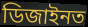
ডিজাইনত